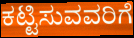
ಕಟ್ಟಿಸುವವರಿಗೆ